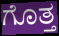
ಗೊತ್ತ